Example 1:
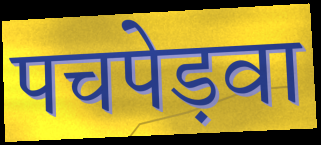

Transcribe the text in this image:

पचपेड़वा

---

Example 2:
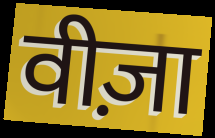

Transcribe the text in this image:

वीज़ा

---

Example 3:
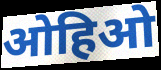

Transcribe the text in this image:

ओहिओ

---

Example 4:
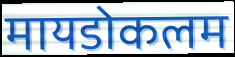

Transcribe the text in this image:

मायडोकलम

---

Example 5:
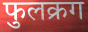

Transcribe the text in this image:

फुलक्रग